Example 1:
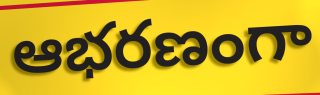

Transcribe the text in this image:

ఆభరణంగా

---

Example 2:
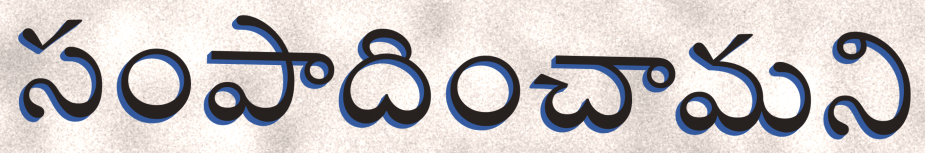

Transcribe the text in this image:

సంపాదించామని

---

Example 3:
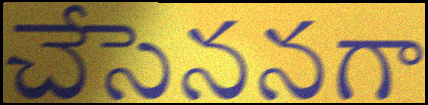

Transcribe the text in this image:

చేసెననగా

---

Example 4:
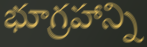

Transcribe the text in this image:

భూగ్రహాన్ని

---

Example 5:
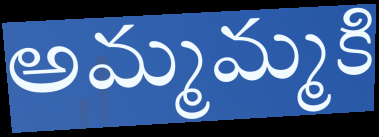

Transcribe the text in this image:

అమ్మమ్మకి